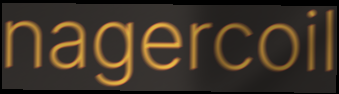
nagercoil